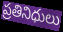
ప్రతినిధులు